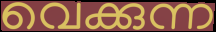
വെക്കുന്ന